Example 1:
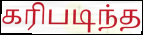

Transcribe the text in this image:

கரிபடிந்த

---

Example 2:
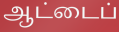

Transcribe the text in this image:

ஆட்டைப்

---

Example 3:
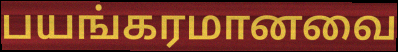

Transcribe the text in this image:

பயங்கரமானவை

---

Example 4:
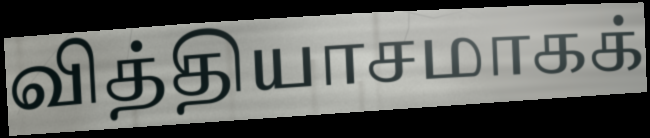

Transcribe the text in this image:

வித்தியாசமாகக்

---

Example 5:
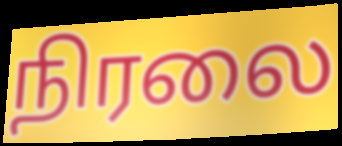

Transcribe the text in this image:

நிரலை